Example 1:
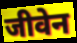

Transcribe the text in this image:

जीवेन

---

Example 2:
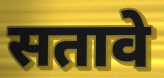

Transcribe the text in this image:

सतावे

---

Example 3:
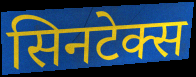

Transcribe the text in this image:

सिनटेक्स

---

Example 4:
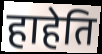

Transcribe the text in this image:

हाहेति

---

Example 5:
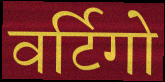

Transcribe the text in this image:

वर्टिगो